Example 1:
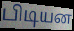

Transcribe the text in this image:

பிடியன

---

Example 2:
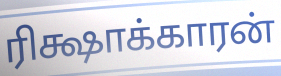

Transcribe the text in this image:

ரிக்ஷாக்காரன்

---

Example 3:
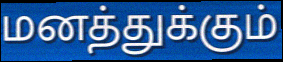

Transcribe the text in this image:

மனத்துக்கும்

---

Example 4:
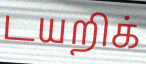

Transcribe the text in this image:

டயறிக்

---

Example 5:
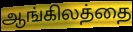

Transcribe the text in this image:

ஆங்கிலத்தை